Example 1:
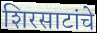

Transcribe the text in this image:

शिरसाटांचे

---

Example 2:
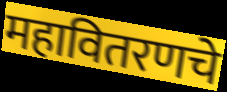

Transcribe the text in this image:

महावितरणचे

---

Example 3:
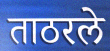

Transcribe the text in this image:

ताठरले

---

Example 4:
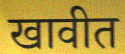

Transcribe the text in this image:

खावीत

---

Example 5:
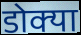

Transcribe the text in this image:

डोक्या